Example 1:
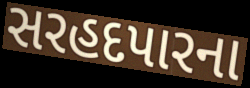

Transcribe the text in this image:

સરહદપારના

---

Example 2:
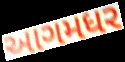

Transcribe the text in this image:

આગમધર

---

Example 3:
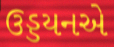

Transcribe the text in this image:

ઉડ્ડયનએ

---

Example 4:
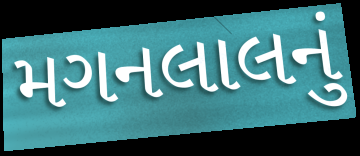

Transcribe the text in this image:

મગનલાલનું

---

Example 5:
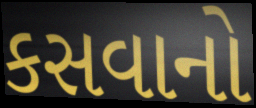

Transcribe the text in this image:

કસવાનો